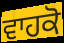
ਵਾਹਕੋ